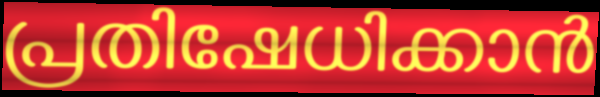
പ്രതിഷേധിക്കാൻ